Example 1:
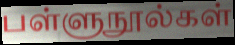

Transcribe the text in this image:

பள்ளுநூல்கள்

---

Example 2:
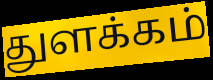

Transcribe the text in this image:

துளக்கம்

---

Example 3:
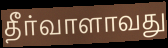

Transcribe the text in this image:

தீர்வாளாவது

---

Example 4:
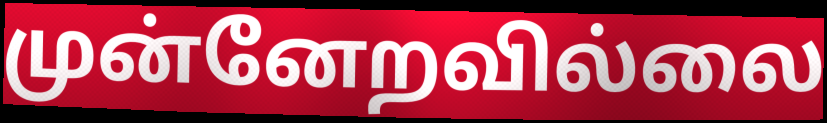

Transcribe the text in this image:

முன்னேறவில்லை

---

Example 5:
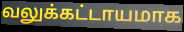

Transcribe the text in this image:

வலுக்கட்டாயமாக